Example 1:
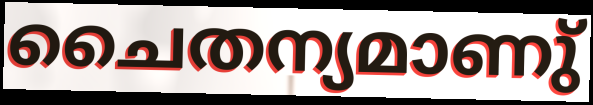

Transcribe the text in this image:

ചൈതന്യമാണു്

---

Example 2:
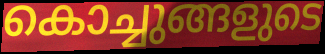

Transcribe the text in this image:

കൊച്ചുങ്ങളുടെ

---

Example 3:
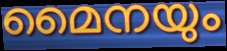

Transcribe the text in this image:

മൈനയും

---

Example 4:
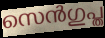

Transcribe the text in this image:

സെൻഗുപ്ത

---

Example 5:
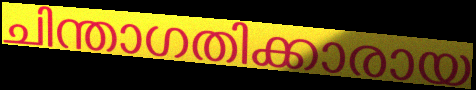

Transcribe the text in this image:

ചിന്താഗതിക്കാരായ